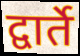
द्वार्ते